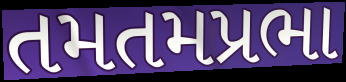
તમતમપ્રભા